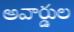
అవార్డుల